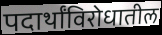
पदार्थांविरोधातील